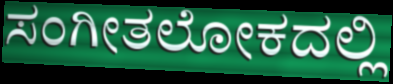
ಸಂಗೀತಲೋಕದಲ್ಲಿ